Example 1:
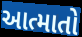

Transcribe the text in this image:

આત્માતો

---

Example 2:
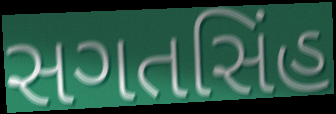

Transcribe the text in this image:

સગતસિંહ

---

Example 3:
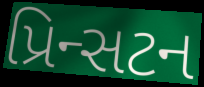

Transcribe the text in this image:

પ્રિન્સટન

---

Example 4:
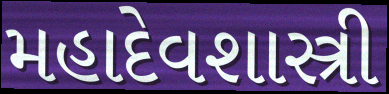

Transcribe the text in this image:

મહાદેવશાસ્ત્રી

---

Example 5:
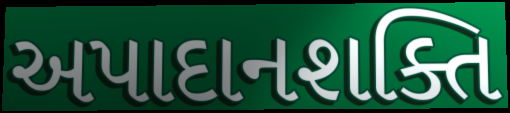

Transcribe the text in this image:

અપાદાનશક્તિ